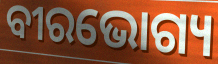
ବୀରଭୋଗ୍ୟ